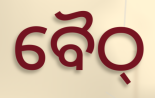
ବୈଠ୍